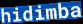
hidimba